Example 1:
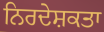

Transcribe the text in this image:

ਨਿਰਦੇਸ਼ਕਤਾ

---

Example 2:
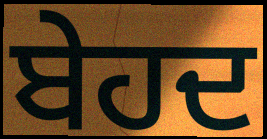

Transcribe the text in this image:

ਬੇਹਦ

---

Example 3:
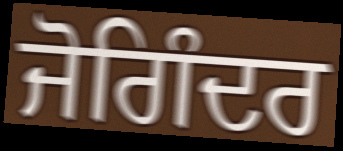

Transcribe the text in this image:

ਜੋਗਿੰਦਰ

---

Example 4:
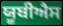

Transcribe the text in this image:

ਯੂਬੀਐਸ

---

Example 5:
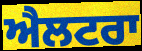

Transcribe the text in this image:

ਐਲਟਰਾ